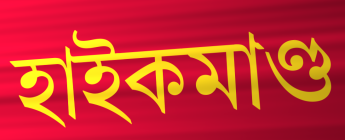
হাইকমাণ্ড